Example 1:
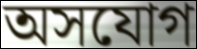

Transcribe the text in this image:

অসযোগ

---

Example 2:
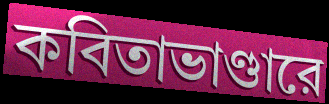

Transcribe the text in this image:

কবিতাভাণ্ডারে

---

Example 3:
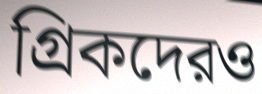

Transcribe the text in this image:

গ্রিকদেরও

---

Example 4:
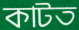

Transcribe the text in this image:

কাটত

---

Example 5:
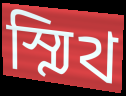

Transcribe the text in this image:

স্মিথ